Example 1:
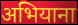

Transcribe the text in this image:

अभियाना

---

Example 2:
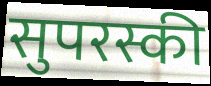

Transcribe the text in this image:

सुपरस्की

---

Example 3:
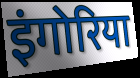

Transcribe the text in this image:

इंगोरिया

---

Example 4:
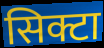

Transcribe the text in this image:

सिक्टा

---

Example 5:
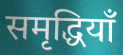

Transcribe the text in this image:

समृद्धियाँ